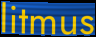
litmus